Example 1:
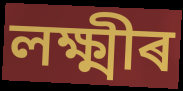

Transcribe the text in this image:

লক্ষ্মীৰ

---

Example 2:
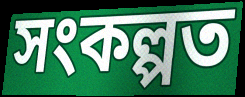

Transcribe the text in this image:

সংকল্পত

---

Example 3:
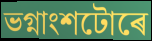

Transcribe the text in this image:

ভগ্নাংশটোৰে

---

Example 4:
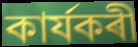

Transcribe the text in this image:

কাৰ্যকৰী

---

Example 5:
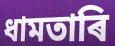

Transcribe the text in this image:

ধামতাৰি